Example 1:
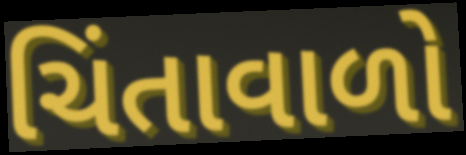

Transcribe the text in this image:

ચિંતાવાળો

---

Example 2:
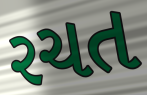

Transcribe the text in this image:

રચત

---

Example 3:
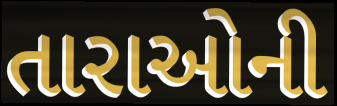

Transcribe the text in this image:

તારાઓની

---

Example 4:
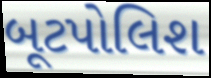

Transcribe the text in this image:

બૂટપોલિશ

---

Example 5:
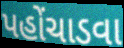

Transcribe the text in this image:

પહોંચાડવા